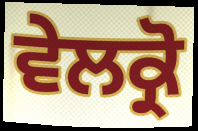
ਵੇਲਕ੍ਰੋ